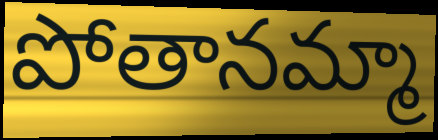
పోతానమ్మా